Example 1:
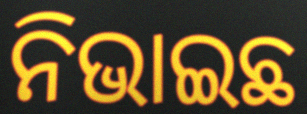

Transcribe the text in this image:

ନିଭାଇଛ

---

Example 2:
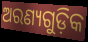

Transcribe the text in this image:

ଅରଣ୍ୟଗୁଡ଼ିକ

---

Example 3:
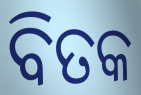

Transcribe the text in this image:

ବିତକ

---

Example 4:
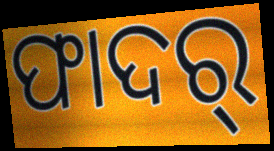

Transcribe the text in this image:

ଫାଦର୍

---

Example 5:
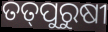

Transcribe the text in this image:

ତତ୍‌ପୁରୁଷୀ